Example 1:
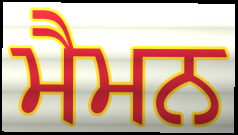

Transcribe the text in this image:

ਮੈਮਨ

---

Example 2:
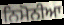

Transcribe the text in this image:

ਨਿਮੋਨੀਆ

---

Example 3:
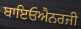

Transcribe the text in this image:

ਬਾਇਓਐਨਰਜੀ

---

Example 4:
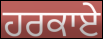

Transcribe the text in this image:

ਹਰਕਾਏ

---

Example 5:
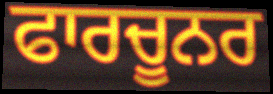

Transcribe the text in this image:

ਫਾਰਚੂਨਰ